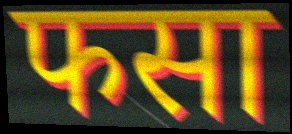
फसा